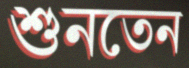
শুনতেন